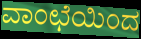
ವಾಂಛೆಯಿಂದ